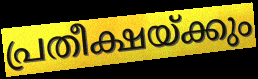
പ്രതീക്ഷയ്ക്കും